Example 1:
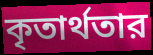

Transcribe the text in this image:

কৃতার্থতার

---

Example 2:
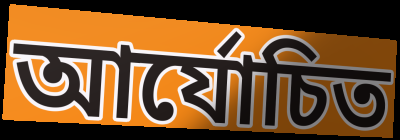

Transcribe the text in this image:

আর্যোচিত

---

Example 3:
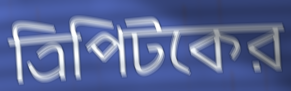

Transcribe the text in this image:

ত্রিপিটকের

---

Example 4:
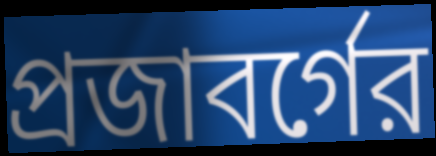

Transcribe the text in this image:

প্রজাবর্গের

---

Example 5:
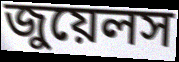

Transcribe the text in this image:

জুয়েলস